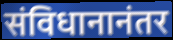
संविधानानंतर